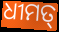
ଧୀମତ୍